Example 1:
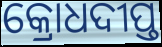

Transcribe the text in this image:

କ୍ରୋଧଦୀପ୍ତ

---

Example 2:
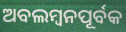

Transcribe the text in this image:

ଅବଲମ୍ୱନପୂର୍ବକ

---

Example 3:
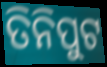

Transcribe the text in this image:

ତିନିପୁଟ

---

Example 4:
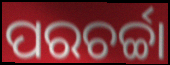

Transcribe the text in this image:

ପରଚର୍ଚ୍ଚା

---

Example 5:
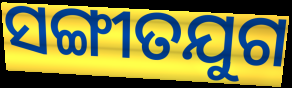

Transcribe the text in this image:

ସଙ୍ଗୀତଯୁଗ